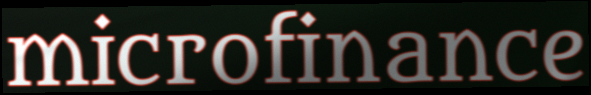
microfinance